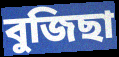
বুজিছা